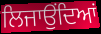
ਲਿਜਾਉਂਦਿਆਂ